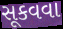
સૂકવવા